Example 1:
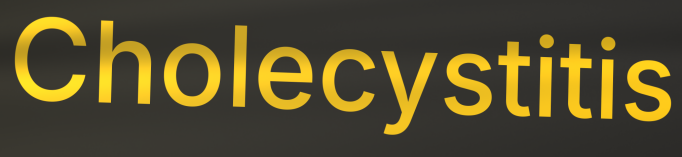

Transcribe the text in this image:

Cholecystitis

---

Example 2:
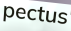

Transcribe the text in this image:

pectus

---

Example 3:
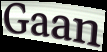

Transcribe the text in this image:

Gaan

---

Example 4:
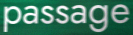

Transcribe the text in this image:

passage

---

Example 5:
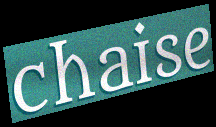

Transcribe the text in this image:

chaise